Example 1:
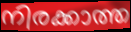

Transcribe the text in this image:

നിരക്കാത്ത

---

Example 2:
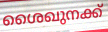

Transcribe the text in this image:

ശൈഖുനക്ക്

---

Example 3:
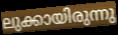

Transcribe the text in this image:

ലുക്കായിരുന്നു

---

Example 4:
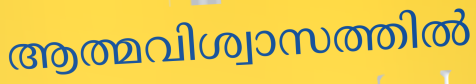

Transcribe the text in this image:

ആത്മവിശ്വാസത്തിൽ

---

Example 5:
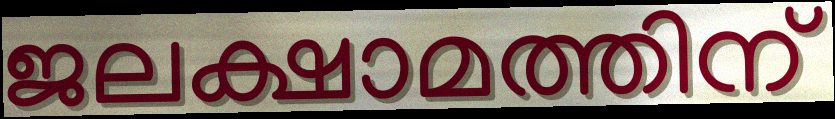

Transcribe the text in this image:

ജലക്ഷാമത്തിന്